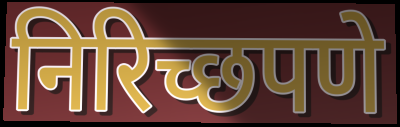
निरिच्छपणे